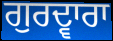
ਗੁਰਦ੍ਵਾਰਾ